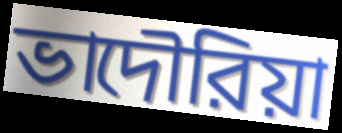
ভাদৌরিয়া